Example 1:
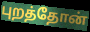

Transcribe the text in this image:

புறத்தோன்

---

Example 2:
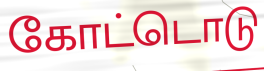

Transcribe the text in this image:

கோட்டொடு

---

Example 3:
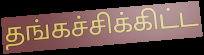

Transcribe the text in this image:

தங்கச்சிக்கிட்ட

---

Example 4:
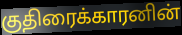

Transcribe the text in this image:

குதிரைக்காரனின்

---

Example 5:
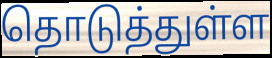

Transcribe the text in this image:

தொடுத்துள்ள